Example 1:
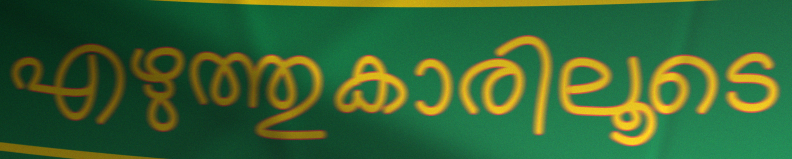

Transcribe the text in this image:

എഴുത്തുകാരിലൂടെ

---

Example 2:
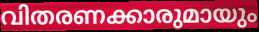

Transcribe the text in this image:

വിതരണക്കാരുമായും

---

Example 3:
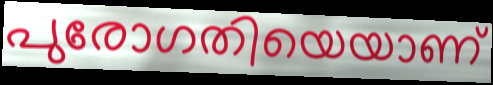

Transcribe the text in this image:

പുരോഗതിയെയാണ്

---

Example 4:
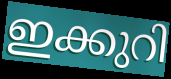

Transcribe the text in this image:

ഇക്കുറി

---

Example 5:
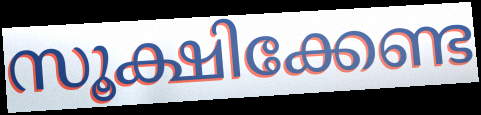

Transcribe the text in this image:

സൂക്ഷിക്കേണ്ട